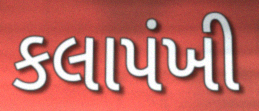
કલાપંખી